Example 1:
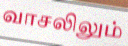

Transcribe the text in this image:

வாசலிலும்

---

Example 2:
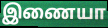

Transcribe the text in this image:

இணையா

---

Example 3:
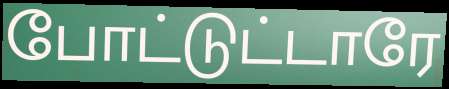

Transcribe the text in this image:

போட்டுட்டாரே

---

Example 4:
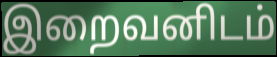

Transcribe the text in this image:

இறைவனிடம்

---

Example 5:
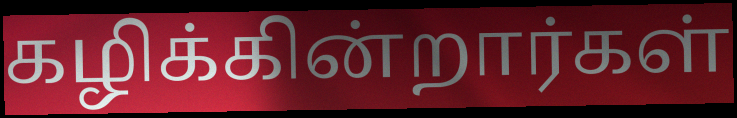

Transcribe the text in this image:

கழிக்கின்றார்கள்